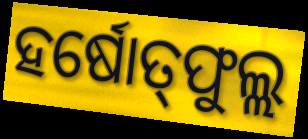
ହର୍ଷୋତ୍‌ଫୁଲ୍ଲ